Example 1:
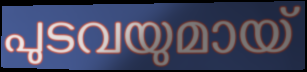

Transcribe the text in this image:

പുടവയുമായ്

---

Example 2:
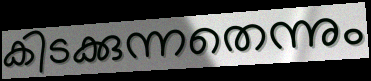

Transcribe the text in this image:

കിടക്കുന്നതെന്നും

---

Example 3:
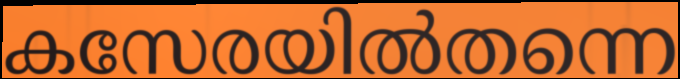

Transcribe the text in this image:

കസേരയിൽതന്നെ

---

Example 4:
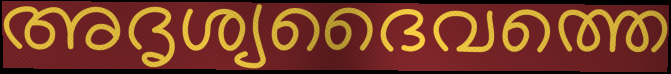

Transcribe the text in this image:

അദൃശ്യദൈവത്തെ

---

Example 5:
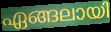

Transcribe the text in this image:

ഏങ്ങലായി